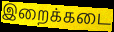
இறைக்கடை